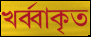
খর্ব্বাকৃত